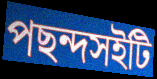
পছন্দসইটি